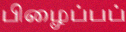
பிழைப்பப்